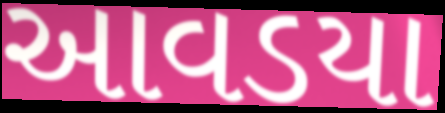
આવડયા